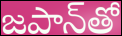
జపాన్‌తో